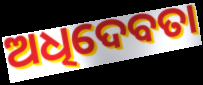
ଅଧିଦେବତା